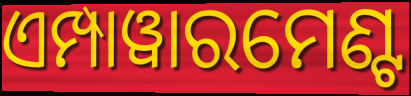
ଏମ୍ପାୱାରମେଣ୍ଟ